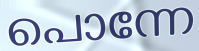
പൊന്നേ